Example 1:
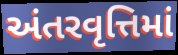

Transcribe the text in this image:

અંતરવૃત્તિમાં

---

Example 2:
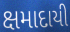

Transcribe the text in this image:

ક્ષમાદાયી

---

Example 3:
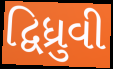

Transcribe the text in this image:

દ્વિધ્રુવી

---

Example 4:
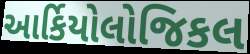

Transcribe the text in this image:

આર્કિયોલોજિકલ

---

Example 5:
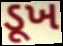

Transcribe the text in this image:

ડૂખ